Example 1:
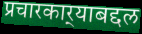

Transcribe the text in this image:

प्रचारकार्याबद्दल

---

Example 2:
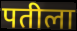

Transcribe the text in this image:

पतीला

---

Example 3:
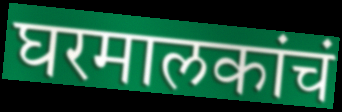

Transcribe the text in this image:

घरमालकांचं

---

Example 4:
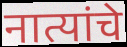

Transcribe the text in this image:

नात्यांचे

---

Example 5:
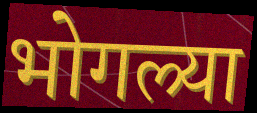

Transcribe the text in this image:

भोगल्या